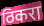
ठिकरा